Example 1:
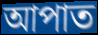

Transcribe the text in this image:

আপাত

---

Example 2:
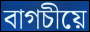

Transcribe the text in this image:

বাগচীয়ে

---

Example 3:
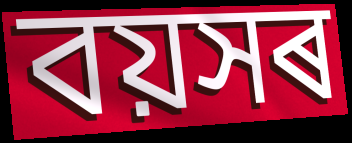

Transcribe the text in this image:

বয়সৰ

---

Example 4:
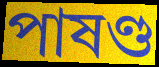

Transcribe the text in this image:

পাষণ্ড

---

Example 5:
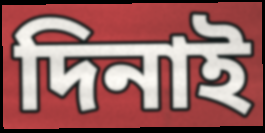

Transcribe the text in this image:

দিনাই